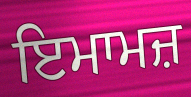
ਇਮਾਮਜ਼